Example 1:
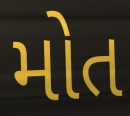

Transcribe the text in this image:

મોત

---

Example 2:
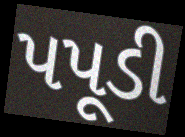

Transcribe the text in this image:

પપૂડી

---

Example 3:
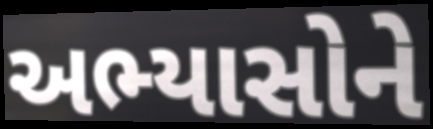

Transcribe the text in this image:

અભ્યાસોને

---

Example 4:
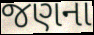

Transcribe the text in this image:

જણના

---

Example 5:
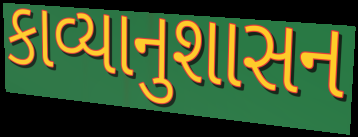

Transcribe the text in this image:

કાવ્યાનુશાસન